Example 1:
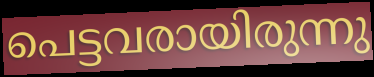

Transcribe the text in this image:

പെട്ടവരായിരുന്നു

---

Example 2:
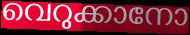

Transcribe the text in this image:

വെറുക്കാനോ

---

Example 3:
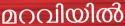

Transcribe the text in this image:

മറവിയിൽ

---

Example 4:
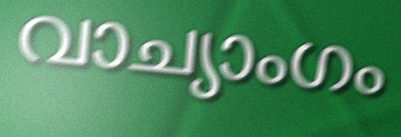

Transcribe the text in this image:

വാച്യാംഗം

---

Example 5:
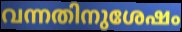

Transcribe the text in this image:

വന്നതിനുശേഷം